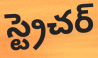
స్ట్రెచర్